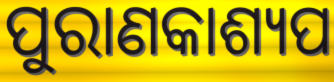
ପୁରାଣକାଶ୍ୟପ